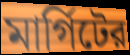
মার্গিটের